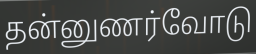
தன்னுணர்வோடு